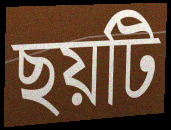
ছয়টি